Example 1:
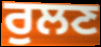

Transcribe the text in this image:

ਰੁਲਣ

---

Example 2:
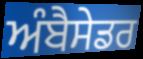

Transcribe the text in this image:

ਅੰਬੈਸੇਡਰ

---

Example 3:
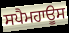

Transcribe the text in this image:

ਸਪੈਮਹਾਊਸ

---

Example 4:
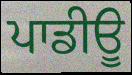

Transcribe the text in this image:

ਪਾਡੀਊ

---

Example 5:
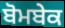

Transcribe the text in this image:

ਬੋਮਬੇਕ